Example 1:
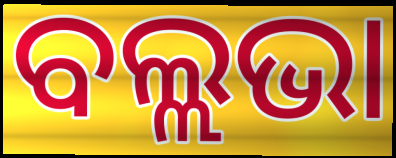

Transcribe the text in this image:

ବଲ୍ଲଭା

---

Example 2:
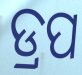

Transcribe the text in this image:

ଡ୍ରପ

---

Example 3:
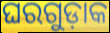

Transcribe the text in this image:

ଘରଗୁଡ଼ାକ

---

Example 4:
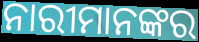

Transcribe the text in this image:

ନାରୀମାନଙ୍କର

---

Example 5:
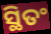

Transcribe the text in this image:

ସ୍ଥିତଂ